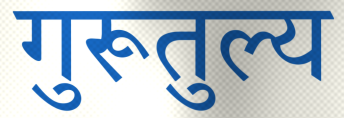
गुरूतुल्य